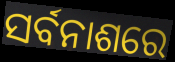
ସର୍ବନାଶରେ